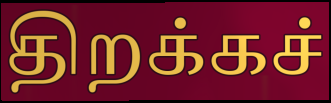
திறக்கச்